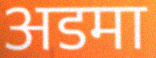
अडमा